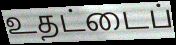
உதட்டைப்